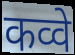
कव्वे